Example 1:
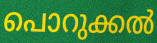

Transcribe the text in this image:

പൊറുക്കൽ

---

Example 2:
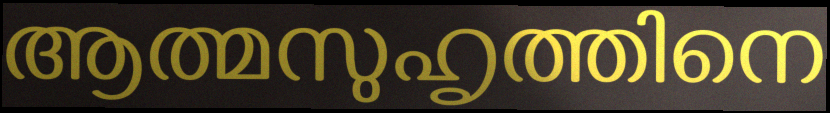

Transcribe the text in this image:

ആത്മസുഹൃത്തിനെ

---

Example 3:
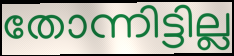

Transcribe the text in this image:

തോന്നിട്ടില്ല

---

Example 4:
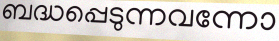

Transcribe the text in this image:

ബദ്ധപ്പെടുന്നവന്നോ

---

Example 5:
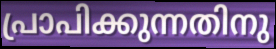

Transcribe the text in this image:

പ്രാപിക്കുന്നതിനു